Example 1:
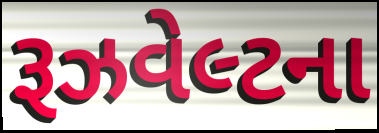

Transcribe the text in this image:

રૂઝવેલ્ટના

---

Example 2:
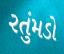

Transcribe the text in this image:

રતુંમડો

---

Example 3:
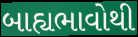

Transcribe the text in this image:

બાહ્યભાવોથી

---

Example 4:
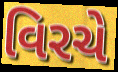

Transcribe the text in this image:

વિરચે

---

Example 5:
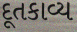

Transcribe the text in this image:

દૂતકાવ્ય